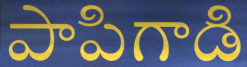
పాపిగాడి